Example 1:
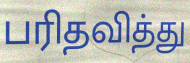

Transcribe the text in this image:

பரிதவித்து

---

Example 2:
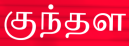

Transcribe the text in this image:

குந்தள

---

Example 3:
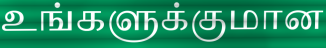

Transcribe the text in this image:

உங்களுக்குமான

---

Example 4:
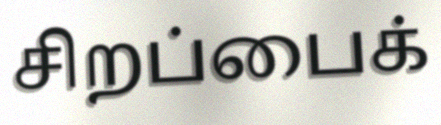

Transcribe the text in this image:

சிறப்பைக்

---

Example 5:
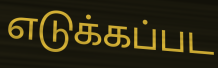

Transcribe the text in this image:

எடுக்கப்பட